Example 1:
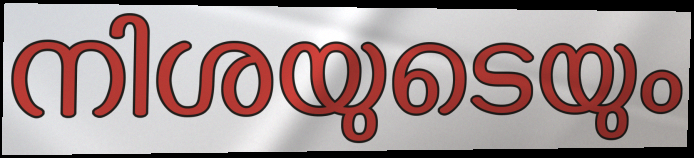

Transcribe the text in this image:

നിശയുടെയും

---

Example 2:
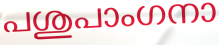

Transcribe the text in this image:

പശുപാംഗനാ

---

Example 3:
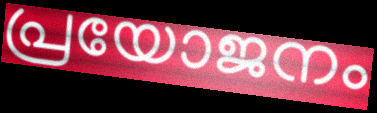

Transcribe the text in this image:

പ്രയോജനം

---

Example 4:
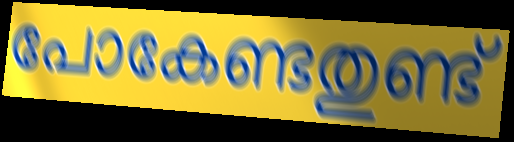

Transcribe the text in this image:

പോകേണ്ടതുണ്ട്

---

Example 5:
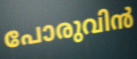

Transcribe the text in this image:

പോരുവിൻ